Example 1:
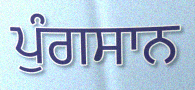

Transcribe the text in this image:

ਪੁੰਗਸਾਨ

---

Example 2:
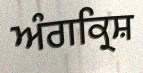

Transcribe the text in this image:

ਅੰਗਕ੍ਰਿਸ਼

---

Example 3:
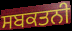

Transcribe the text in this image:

ਸਬਕਤਨੀ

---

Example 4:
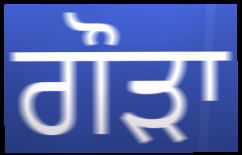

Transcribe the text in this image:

ਗੌੜਾ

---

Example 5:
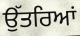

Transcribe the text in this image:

ਉੱਤਰਿਆਂ